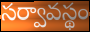
సర్వావస్థం